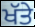
ਖੱਤੇ